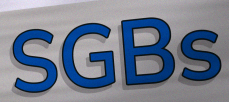
SGBs